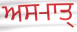
ਅਸ੍ਮਾਤ੍